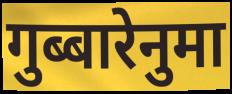
गुब्बारेनुमा